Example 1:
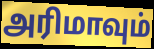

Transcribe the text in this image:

அரிமாவும்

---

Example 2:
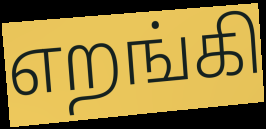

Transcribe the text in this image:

எறங்கி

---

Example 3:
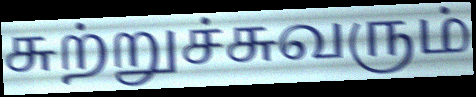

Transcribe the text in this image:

சுற்றுச்சுவரும்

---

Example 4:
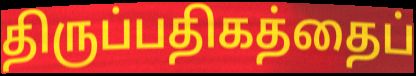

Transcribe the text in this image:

திருப்பதிகத்தைப்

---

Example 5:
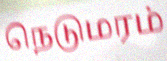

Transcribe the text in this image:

நெடுமரம்